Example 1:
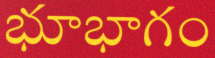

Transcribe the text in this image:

భూభాగం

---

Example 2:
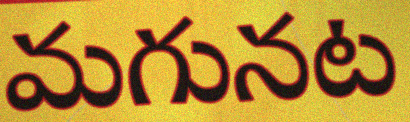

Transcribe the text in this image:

మగునట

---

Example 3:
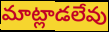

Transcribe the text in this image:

మాట్లాడలేవు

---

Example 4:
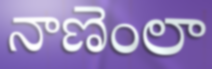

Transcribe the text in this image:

నాణెంలా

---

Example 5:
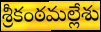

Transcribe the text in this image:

శ్రీకంఠమల్లేశు